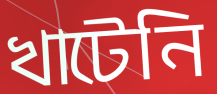
খাটেনি